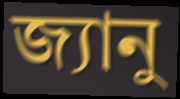
জ্যানু